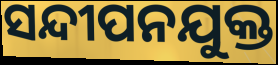
ସନ୍ଦୀପନଯୁକ୍ତ